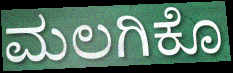
ಮಲಗಿಕೊ